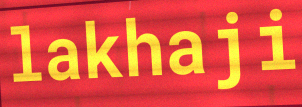
lakhaji